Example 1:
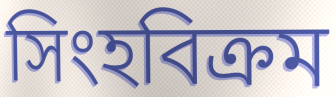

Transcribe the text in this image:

সিংহবিক্রম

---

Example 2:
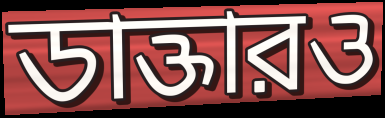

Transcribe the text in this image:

ডাক্তারও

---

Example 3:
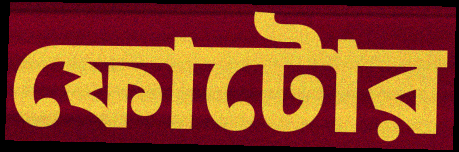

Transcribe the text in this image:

ফোটোর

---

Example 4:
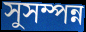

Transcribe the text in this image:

সুসম্পন্ন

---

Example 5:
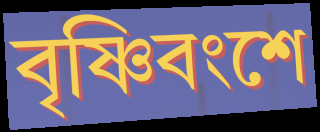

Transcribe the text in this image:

বৃষ্ণিবংশে